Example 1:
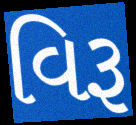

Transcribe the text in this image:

વિરૂ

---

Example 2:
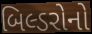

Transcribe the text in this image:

બિલ્ડરોનો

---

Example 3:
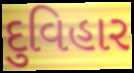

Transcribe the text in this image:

દુવિહાર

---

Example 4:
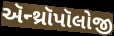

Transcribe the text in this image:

ઍન્થ્રૉપૉલોજી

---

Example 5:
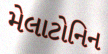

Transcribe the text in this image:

મેલાટોનિન